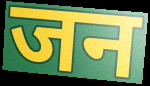
जन